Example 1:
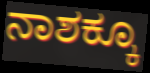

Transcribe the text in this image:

ನಾಶಕ್ಕೂ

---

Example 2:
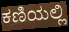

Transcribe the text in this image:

ಕಣಿಯಲ್ಲಿ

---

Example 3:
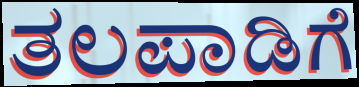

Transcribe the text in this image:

ತಲಪಾಡಿಗೆ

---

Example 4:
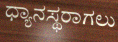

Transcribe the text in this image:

ಧ್ಯಾನಸ್ಥರಾಗಲು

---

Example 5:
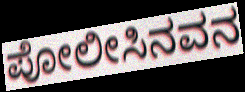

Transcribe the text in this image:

ಪೋಲೀಸಿನವನ